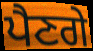
ਪੈਣਗੇ